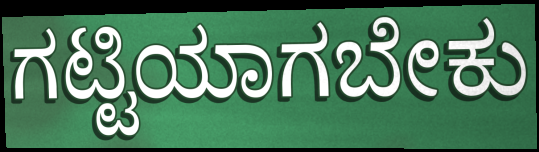
ಗಟ್ಟಿಯಾಗಬೇಕು